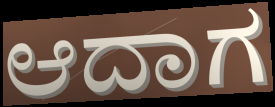
ಆದಾಗ